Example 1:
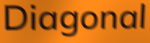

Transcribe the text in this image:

Diagonal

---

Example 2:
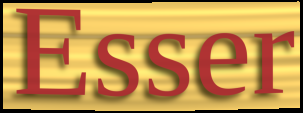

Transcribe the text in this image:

Esser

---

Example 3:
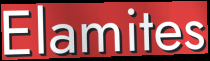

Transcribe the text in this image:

Elamites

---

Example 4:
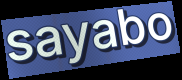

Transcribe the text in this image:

sayabo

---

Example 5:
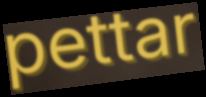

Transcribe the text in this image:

pettar